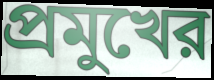
প্রমুখের